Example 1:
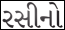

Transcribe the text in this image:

રસીનો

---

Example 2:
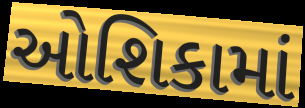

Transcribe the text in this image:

ઓશિકામાં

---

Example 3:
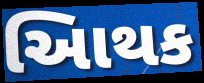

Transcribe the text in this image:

આિથક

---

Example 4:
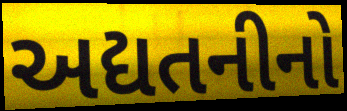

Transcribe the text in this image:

અદ્યતનીનો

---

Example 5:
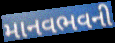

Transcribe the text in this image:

માનવભવની